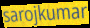
sarojkumar